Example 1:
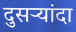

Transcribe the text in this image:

दुसर्‍यांदा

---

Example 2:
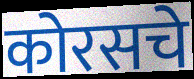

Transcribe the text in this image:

कोरसचे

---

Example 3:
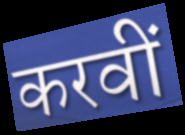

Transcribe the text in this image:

करवीं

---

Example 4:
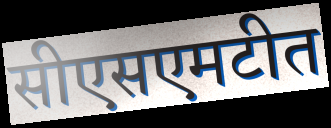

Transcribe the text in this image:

सीएसएमटीत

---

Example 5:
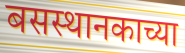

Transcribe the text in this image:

बसस्थानकाच्या